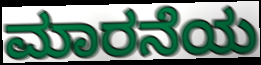
ಮಾರನೆಯ